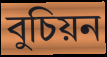
বুচিয়ন